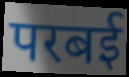
परबई